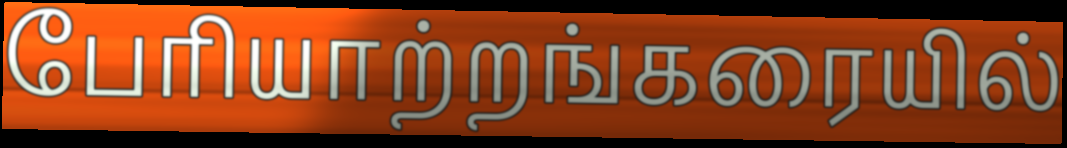
பேரியாற்றங்கரையில்